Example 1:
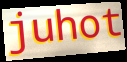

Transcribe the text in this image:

juhot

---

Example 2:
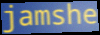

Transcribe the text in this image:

jamshe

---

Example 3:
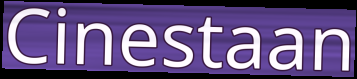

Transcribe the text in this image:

Cinestaan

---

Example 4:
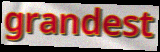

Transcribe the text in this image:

grandest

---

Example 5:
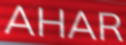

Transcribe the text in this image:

AHAR